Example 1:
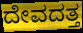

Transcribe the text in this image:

ದೇವದತ್ತ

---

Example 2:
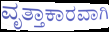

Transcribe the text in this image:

ವೃತ್ತಾಕಾರವಾಗಿ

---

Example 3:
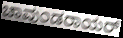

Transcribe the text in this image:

ಚಾವುಂಡರಾಯರ್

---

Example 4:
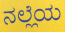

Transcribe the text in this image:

ನಲ್ಲೆಯ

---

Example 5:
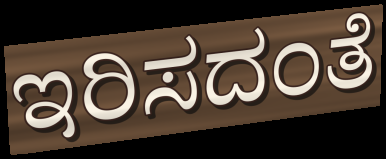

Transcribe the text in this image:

ಇರಿಸದಂತೆ